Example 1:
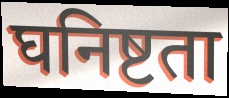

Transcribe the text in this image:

घनिष्टता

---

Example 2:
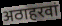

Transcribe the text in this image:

अठाहरवां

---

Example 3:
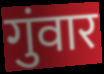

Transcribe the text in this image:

गुंवार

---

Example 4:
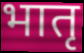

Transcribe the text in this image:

भातृ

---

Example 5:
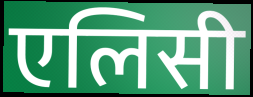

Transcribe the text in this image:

एलिसी